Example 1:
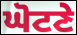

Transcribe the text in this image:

ਘੋਟਣੇ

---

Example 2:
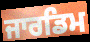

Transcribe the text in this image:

ਜਾਰਡਿਮ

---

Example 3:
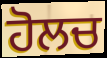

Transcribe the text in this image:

ਹੋਲਚ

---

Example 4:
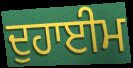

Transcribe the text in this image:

ਦੁਹਾਈਮ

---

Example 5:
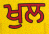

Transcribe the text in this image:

ਖੁਲ